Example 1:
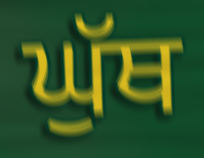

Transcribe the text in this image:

ਘੁੱਥ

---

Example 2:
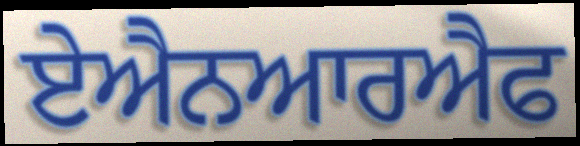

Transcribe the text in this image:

ਏਐਨਆਰਐਫ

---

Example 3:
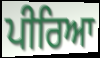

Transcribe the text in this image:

ਪੀਰਿਆ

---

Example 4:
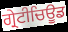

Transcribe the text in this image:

ਗ੍ਰੇਟੀਚਿਊਡ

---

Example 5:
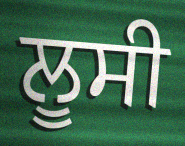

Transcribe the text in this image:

ਲੂਸੀ